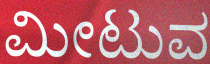
ಮೀಟುವ